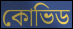
কোভিড